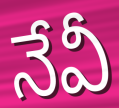
నేవీ